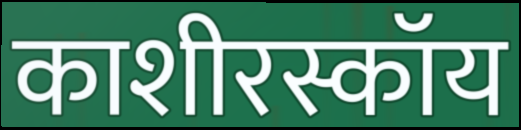
काशीरस्कॉय